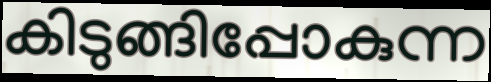
കിടുങ്ങിപ്പോകുന്ന